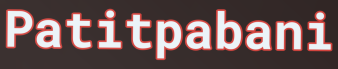
Patitpabani